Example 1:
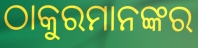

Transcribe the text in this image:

ଠାକୁରମାନଙ୍କର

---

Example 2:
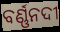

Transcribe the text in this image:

ବର୍ଣ୍ଣନଦୀ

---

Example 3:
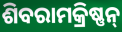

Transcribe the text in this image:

ଶିବରାମକ୍ରିଷ୍ଣନ୍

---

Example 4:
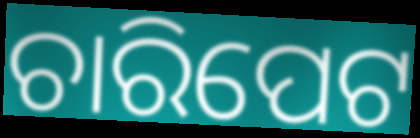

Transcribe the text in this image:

ଚାରିପେଟ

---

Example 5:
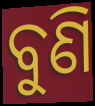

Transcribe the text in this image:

ବୁଣି